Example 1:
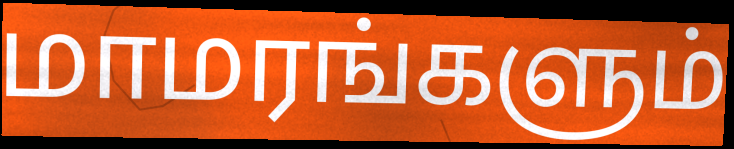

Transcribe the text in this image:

மாமரங்களும்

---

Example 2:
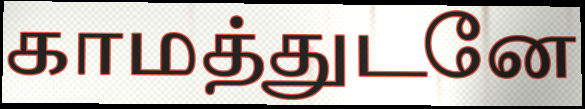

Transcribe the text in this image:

காமத்துடனே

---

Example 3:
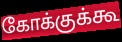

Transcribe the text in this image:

கோக்குக்கூ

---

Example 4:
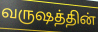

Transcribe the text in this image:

வருஷத்தின்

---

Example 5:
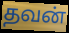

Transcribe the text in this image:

தவன்